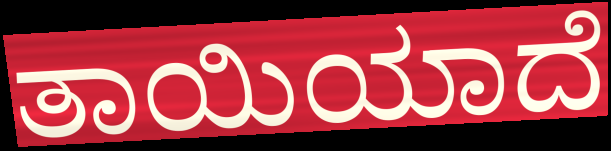
ತಾಯಿಯಾದೆ